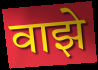
वाझे